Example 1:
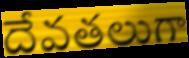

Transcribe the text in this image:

దేవతలుగా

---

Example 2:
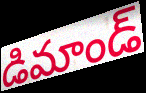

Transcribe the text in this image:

డిమాండ్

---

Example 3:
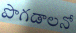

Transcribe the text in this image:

పొగడాలనో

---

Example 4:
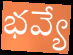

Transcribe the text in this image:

భవ్యే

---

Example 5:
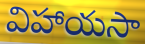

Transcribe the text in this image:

విహాయసా